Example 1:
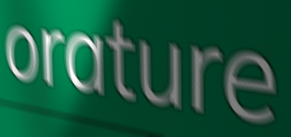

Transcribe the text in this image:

orature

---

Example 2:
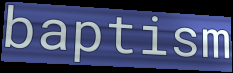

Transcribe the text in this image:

baptism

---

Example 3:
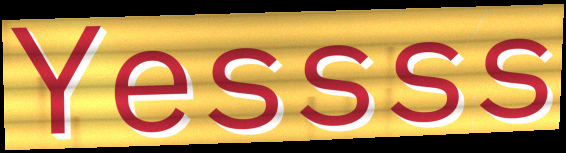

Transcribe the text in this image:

Yessss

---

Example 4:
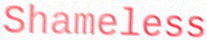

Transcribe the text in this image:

Shameless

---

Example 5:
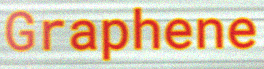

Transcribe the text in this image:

Graphene